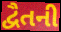
દ્વૈતની